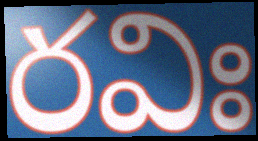
రవిః